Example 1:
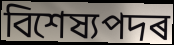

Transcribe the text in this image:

বিশেষ্যপদৰ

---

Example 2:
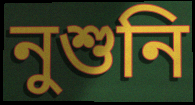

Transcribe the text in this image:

নুশুনি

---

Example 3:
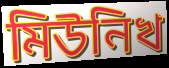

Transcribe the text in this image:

মিউনিখ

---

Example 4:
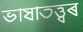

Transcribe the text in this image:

ভাষাতত্ত্বৰ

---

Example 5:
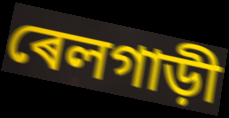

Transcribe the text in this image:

ৰেলগাড়ী